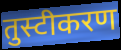
तुस्टीकरण